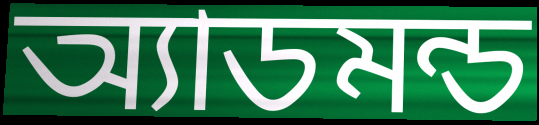
অ্যাডমন্ড